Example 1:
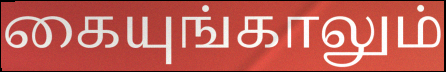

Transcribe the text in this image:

கையுங்காலும்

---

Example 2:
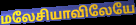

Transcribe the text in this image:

மலேசியாவிலேயே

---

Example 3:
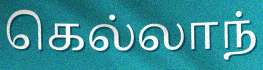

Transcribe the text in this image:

கெல்லாந்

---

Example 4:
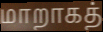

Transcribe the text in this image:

மாறாகத்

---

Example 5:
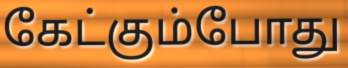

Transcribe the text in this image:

கேட்கும்போது